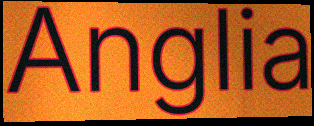
Anglia